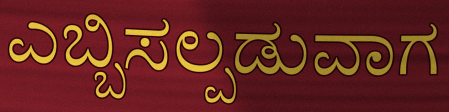
ಎಬ್ಬಿಸಲ್ಪಡುವಾಗ